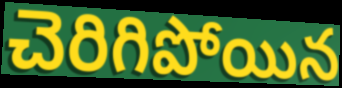
చెరిగిపోయిన